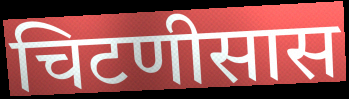
चिटणीसास